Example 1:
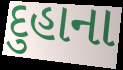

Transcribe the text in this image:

દુહાના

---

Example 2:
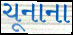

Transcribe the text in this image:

ચૂનાના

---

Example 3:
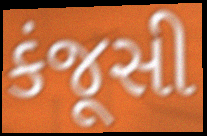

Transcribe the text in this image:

કંજૂસી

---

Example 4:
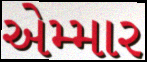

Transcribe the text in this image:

એમ્માર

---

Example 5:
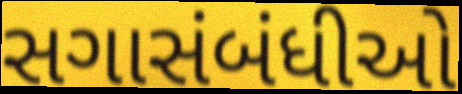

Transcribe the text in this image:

સગાસંબંધીઓ